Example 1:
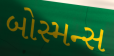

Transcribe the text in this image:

બોસ્મન્સ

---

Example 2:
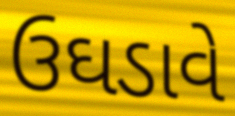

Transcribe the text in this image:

ઉઘડાવે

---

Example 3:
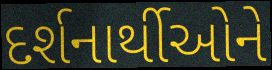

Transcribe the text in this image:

દર્શનાર્થીઓને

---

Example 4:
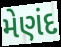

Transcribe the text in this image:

મેણંદ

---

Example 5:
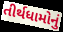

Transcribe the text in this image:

તીર્થધામોનું